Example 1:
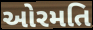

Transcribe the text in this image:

ઓરમતિ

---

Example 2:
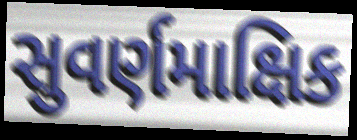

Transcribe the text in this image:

સુવર્ણમાક્ષિક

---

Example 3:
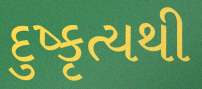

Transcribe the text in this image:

દુષ્કૃત્યથી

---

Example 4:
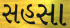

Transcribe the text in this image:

સહસા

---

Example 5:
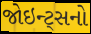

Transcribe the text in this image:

જોઇન્ટ્સનો